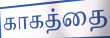
காகத்தை